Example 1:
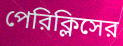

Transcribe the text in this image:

পেরিক্লিসের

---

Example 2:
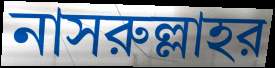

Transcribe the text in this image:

নাসরুল্লাহর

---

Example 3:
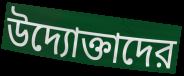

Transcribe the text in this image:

উদ্যোক্তাদের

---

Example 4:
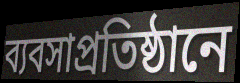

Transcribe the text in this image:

ব্যবসাপ্রতিষ্ঠানে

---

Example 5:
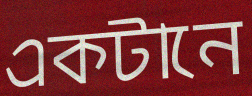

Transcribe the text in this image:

একটানে